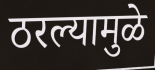
ठरल्यामुळे